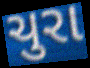
ચુરા